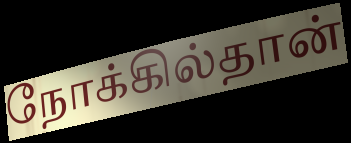
நோக்கில்தான்